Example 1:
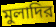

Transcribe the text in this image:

মুলাদির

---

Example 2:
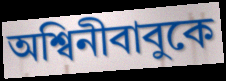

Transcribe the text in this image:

অশ্বিনীবাবুকে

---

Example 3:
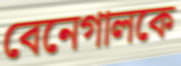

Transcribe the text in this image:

বেনেগালকে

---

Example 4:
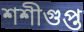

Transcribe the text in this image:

শশীগুপ্ত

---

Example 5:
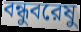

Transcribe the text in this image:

বন্ধুবরেষু